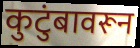
कुटुंबावरून